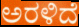
ಅರಳಿದೆ